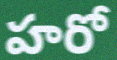
హరో